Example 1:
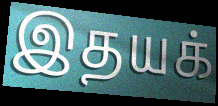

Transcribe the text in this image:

இதயக்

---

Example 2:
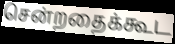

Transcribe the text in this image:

சென்றதைக்கூட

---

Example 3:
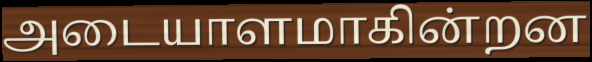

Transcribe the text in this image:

அடையாளமாகின்றன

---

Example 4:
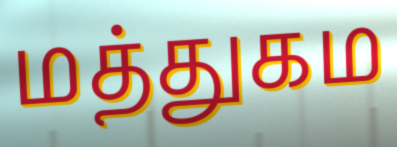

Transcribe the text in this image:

மத்துகம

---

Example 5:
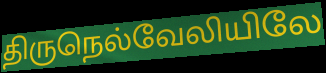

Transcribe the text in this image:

திருநெல்வேலியிலே